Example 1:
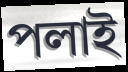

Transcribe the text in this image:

পলাই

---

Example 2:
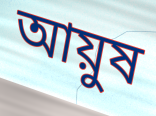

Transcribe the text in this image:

আয়ুষ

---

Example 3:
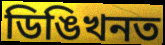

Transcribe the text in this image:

ডিঙিখনত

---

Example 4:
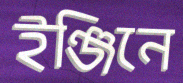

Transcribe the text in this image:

ইঞ্জিনে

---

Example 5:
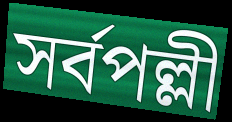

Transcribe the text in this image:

সৰ্বপল্লী